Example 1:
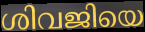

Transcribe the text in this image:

ശിവജിയെ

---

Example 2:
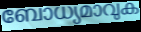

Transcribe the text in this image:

ബോധ്യമാവുക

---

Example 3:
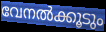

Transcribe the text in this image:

വേനൽക്കൂടും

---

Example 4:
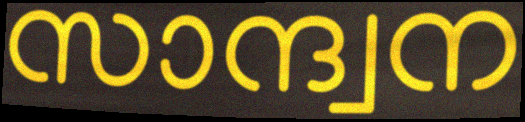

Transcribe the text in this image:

സാന്ദ്വന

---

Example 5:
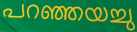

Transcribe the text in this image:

പറഞ്ഞയച്ചു